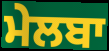
ਮੇਲਬਾ